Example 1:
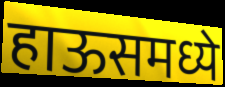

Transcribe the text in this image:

हाऊसमध्ये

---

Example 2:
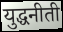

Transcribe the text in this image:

युद्धनीती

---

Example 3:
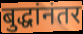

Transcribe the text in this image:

बुद्धांनंतर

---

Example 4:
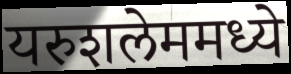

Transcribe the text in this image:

यरुशलेममध्ये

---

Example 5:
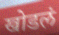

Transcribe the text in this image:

खोडलं